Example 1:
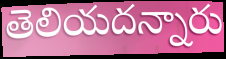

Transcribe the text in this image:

తెలియదన్నారు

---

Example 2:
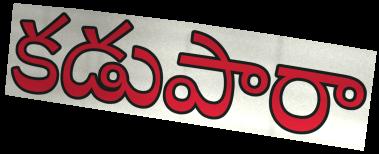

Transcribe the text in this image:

కడుపారా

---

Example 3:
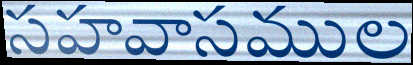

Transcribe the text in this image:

సహవాసముల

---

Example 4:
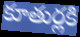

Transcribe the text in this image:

కూతుర్లకి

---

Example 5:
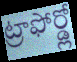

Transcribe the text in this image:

ట్రాఫోర్డ్లో